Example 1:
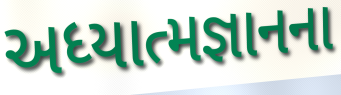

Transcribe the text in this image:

અધ્યાત્મજ્ઞાનના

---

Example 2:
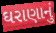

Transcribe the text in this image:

ઘરાણાનું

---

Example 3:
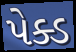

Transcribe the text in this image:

પેક્ડ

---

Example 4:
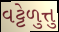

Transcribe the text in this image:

વટ્ટેળુત્તુ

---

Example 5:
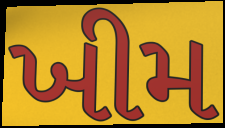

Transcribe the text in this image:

ખીમ